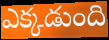
ఎక్కడుంది